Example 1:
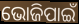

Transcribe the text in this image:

ଭୋଜିପାଇଁ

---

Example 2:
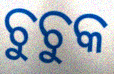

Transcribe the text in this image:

ଚୁଚୁକ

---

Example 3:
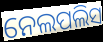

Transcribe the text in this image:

ନେଲପଲିସ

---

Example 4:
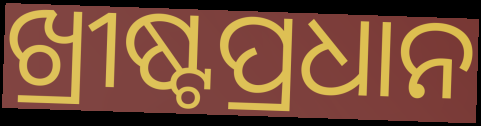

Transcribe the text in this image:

ଖ୍ରୀଷ୍ଟପ୍ରଧାନ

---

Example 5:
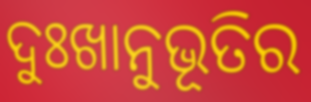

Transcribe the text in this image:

ଦୁଃଖାନୁଭୂତିର